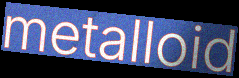
metalloid